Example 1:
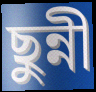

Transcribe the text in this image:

ছুন্নী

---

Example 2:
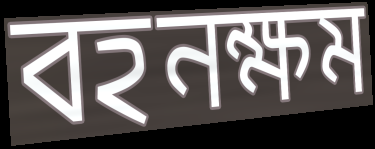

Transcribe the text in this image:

বহনক্ষম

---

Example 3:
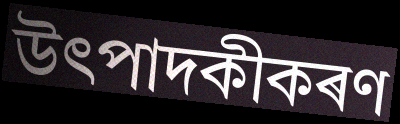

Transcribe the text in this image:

উৎপাদকীকৰণ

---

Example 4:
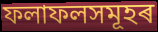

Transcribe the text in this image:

ফলাফলসমূহৰ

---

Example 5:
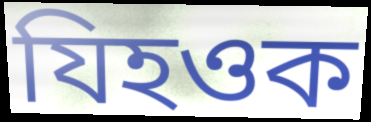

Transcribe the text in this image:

যিহওক